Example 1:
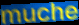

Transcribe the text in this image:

muche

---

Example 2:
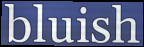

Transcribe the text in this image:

bluish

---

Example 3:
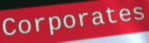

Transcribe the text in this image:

Corporates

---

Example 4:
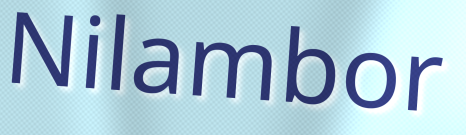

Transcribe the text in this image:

Nilambor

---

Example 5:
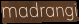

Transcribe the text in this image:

madrangi